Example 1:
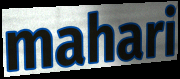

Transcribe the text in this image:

mahari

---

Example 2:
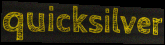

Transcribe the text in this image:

quicksilver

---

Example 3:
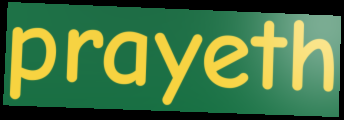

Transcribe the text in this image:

prayeth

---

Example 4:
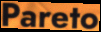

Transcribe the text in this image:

Pareto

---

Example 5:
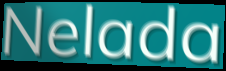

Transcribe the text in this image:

Nelada